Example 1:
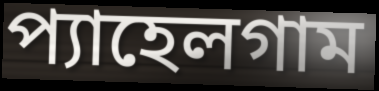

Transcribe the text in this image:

প্যাহেলগাম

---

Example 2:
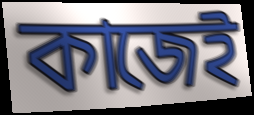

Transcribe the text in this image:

কাজেই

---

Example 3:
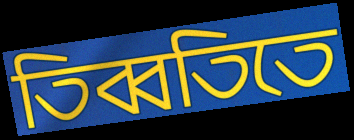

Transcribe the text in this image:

তিব্বতিতে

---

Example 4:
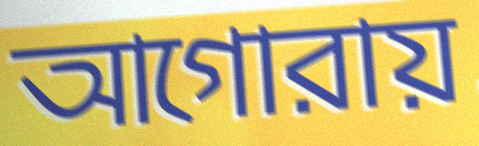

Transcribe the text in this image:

আগোরায়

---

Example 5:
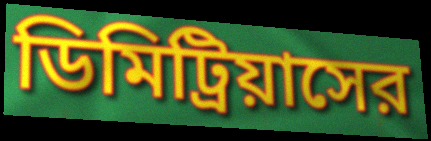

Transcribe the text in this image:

ডিমিট্রিয়াসের